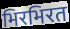
भिरभिरत